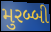
મુરબ્બી